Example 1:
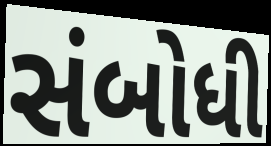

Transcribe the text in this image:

સંબોધી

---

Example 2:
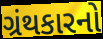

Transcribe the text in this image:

ગ્રંથકારનો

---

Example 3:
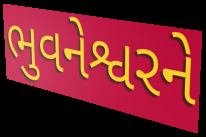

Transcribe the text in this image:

ભુવનેશ્વરને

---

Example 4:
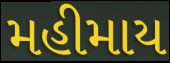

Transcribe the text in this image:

મહીમાય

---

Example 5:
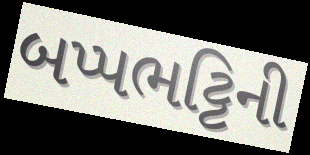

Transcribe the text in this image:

બપ્પભટ્ટિની